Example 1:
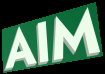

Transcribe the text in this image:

AIM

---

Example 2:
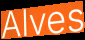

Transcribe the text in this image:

Alves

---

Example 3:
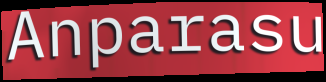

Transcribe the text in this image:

Anparasu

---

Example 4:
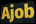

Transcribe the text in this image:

Ajob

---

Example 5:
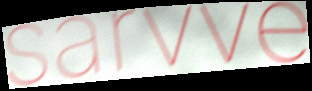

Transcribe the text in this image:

sarvve